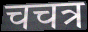
चचत्र